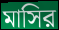
মাসির